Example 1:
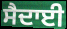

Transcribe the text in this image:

ਸੈਦਾਈ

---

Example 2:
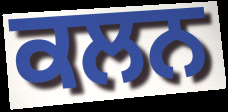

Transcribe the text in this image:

ਕਲਨ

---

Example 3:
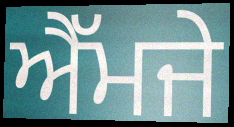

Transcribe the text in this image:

ਐੱਮਜੇ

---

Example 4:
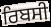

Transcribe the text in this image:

ਰਿਬਸੀ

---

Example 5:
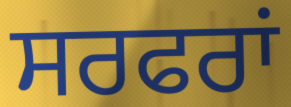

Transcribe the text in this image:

ਸਰਫਰਾਂ